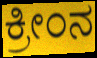
ಕ್ರೀಂನ